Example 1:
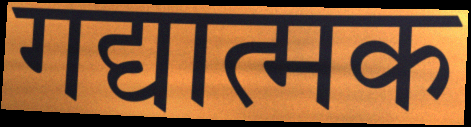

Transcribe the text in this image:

गद्यात्मक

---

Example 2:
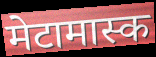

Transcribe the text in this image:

मेटामास्क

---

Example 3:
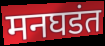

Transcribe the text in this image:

मनघडंत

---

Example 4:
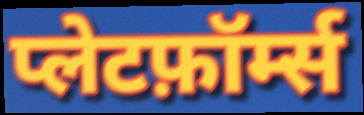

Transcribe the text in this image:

प्लेटफ़ॉर्म्स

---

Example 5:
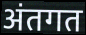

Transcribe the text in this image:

अंतगत